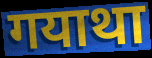
गयाथा